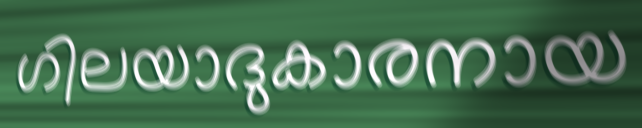
ഗിലയാദുകാരനായ